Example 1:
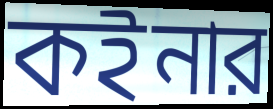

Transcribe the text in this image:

কইনার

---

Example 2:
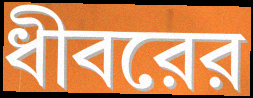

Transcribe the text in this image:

ধীবরের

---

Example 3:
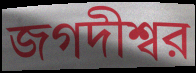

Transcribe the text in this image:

জগদীশ্বর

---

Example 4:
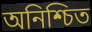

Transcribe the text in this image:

অনিশ্চিত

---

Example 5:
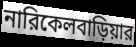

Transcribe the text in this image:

নারিকেলবাড়িয়ার